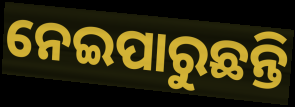
ନେଇପାରୁଛନ୍ତି